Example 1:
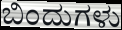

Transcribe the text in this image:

ಬಿಂದುಗಳು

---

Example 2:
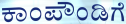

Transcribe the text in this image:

ಕಾಂಪೌಂಡಿಗೆ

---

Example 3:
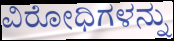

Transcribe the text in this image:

ವಿರೋಧಿಗಳನ್ನು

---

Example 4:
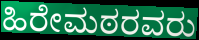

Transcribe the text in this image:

ಹಿರೇಮಠರವರು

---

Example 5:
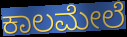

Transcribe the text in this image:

ಕಾಲಮೇಲೆ